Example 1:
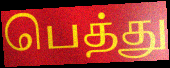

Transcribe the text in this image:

பெத்து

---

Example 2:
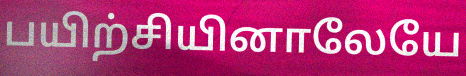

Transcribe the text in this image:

பயிற்சியினாலேயே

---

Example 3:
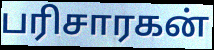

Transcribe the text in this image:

பரிசாரகன்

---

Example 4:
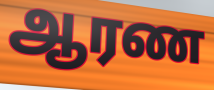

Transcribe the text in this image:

ஆரண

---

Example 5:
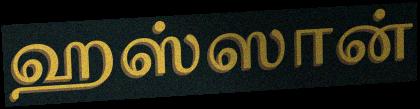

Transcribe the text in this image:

ஹஸ்ஸான்